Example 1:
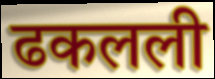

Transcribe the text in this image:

ढकलली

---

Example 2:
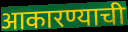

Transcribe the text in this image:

आकारण्याची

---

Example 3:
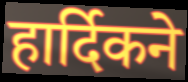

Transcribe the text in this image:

हार्दिकने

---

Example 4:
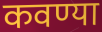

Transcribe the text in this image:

कवण्या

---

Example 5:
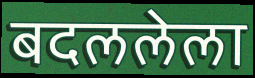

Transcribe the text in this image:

बदललेला